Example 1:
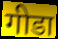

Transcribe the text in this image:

गीडा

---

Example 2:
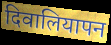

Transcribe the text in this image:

दिवालियापन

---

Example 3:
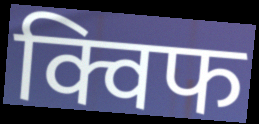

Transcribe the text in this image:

क्विफ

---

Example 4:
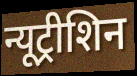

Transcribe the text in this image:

न्यूट्रीशिन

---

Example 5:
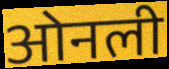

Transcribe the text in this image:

ओनली